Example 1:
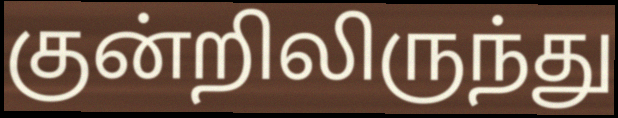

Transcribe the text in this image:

குன்றிலிருந்து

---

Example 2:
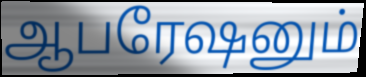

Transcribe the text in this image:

ஆபரேஷனும்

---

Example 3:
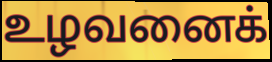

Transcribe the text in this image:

உழவனைக்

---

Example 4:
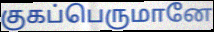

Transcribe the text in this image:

குகப்பெருமானே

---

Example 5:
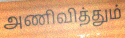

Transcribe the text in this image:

அணிவித்தும்